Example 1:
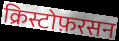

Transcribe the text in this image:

क्रिस्टोफ़रसन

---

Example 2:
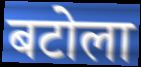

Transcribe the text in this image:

बटोला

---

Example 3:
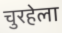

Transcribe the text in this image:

चुरहेला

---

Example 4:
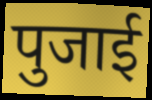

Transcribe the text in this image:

पुजाई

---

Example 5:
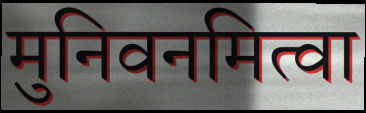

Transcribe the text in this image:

मुनिवनमित्वा